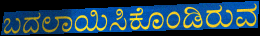
ಬದಲಾಯಿಸಿಕೊಂಡಿರುವ